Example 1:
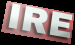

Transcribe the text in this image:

IRE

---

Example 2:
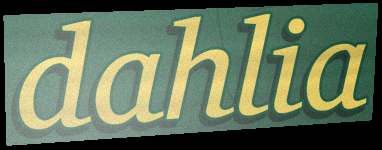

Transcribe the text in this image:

dahlia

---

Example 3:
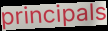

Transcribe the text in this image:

principals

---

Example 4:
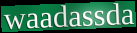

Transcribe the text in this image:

waadassda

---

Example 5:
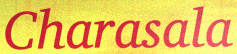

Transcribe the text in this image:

Charasala